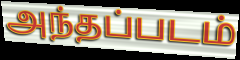
அந்தப்படம்